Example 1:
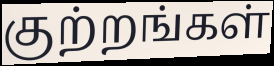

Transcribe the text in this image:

குற்றங்கள்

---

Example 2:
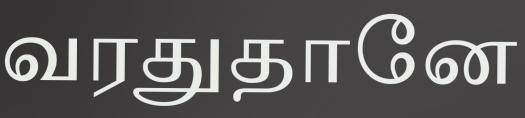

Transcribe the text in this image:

வரதுதானே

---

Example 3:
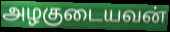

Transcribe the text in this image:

அழகுடையவன்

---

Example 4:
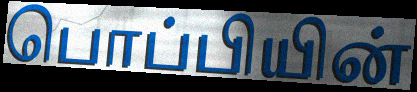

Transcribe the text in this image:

பொப்பியின்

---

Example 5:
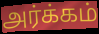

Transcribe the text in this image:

அர்க்கம்